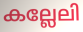
കല്ലേലി